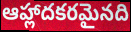
ఆహ్లాదకరమైనది